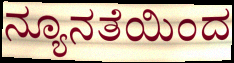
ನ್ಯೂನತೆಯಿಂದ